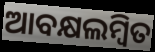
ଆବକ୍ଷଲମ୍ବିତ